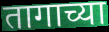
तागाच्या